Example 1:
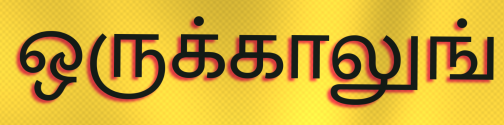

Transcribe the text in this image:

ஒருக்காலுங்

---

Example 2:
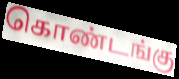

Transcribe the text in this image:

கொண்டங்கு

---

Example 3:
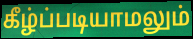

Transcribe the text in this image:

கீழ்ப்படியாமலும்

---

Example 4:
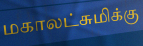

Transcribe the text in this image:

மகாலட்சுமிக்கு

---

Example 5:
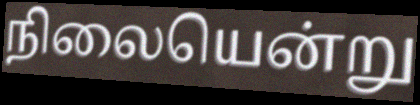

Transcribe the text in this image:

நிலையென்று